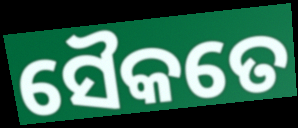
ସୈକତେ